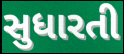
સુધારતી